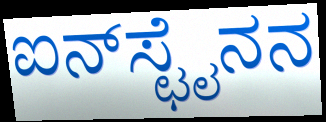
ಐನ್‌ಸ್ಟೈನನ